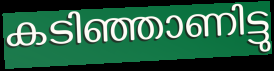
കടിഞ്ഞാണിട്ടു